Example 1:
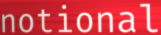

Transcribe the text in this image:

notional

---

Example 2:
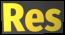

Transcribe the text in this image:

Res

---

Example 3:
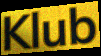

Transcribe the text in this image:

Klub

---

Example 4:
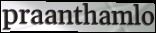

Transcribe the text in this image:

praanthamlo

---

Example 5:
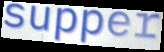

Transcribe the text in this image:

supper